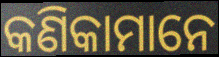
କଣିକାମାନେ